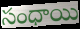
సంధాయి